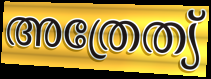
അത്രേത്യ്